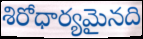
శిరోధార్యమైనది